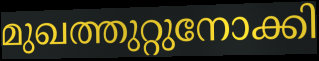
മുഖത്തുറ്റുനോക്കി